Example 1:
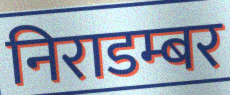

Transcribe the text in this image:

निराडम्बर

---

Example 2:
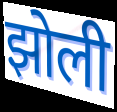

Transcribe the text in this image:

झोली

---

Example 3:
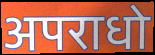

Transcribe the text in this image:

अपराधो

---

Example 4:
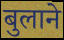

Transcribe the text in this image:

बुलाने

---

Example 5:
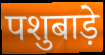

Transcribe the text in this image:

पशुबाड़े